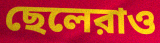
ছেলেরাও